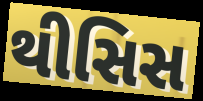
થીસિસ